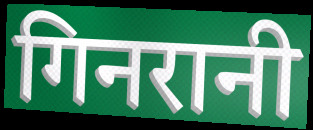
गिनरानी